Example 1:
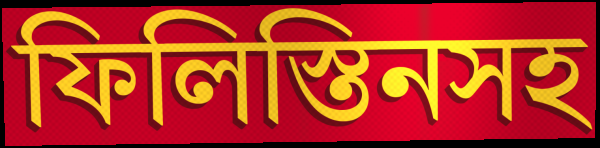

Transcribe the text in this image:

ফিলিস্তিনসহ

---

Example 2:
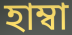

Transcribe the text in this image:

হাম্বা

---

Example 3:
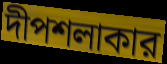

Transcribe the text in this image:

দীপশলাকার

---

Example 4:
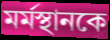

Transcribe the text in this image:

মর্মস্থানকে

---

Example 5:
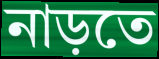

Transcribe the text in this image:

নাড়তে